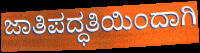
ಜಾತಿಪದ್ಧತಿಯಿಂದಾಗಿ